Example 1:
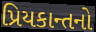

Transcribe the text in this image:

પ્રિયકાન્તનો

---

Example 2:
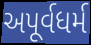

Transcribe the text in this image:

અપૂર્વધર્મ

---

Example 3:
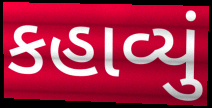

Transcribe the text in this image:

કહાવ્યું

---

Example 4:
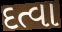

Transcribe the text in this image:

દત્વા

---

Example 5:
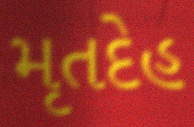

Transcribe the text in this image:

મૃતદેહ